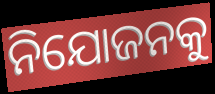
ନିଯୋଜନକୁ